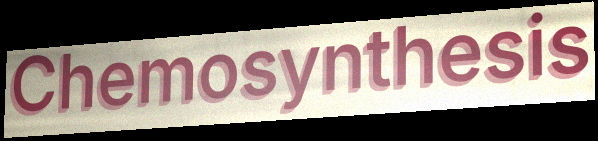
Chemosynthesis